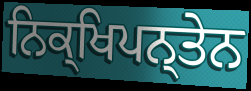
ਨਿਕ੍ਖਿਪਨ੍ਤੇਨ